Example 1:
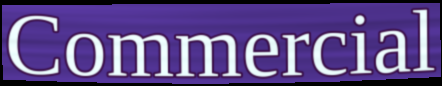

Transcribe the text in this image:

Commercial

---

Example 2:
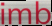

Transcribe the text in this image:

imb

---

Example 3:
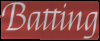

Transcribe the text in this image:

Batting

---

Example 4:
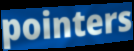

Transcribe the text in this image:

pointers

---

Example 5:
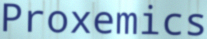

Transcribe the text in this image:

Proxemics